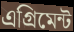
এগ্রিমেন্ট